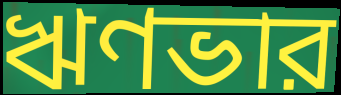
ঋণভার